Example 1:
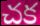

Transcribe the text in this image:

చక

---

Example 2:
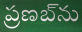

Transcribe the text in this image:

ప్రణబ్‌ను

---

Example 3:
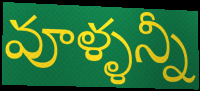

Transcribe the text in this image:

వూళ్ళన్నీ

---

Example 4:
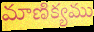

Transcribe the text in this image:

మాణిక్యము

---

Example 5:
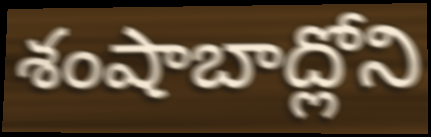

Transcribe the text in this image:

శంషాబాద్లోని